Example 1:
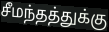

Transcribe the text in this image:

சீமந்தத்துக்கு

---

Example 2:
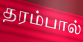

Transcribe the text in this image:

தரம்பால்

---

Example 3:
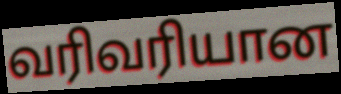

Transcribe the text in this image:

வரிவரியான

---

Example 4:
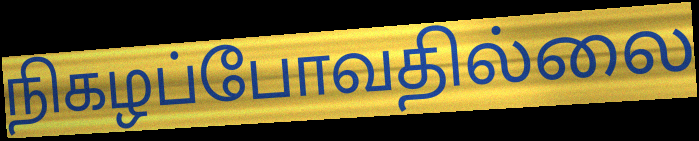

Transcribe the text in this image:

நிகழப்போவதில்லை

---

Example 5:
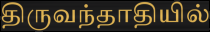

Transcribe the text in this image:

திருவந்தாதியில்